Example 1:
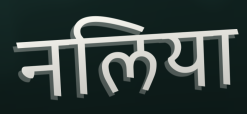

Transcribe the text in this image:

नलिया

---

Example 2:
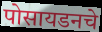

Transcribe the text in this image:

पोसायडनचे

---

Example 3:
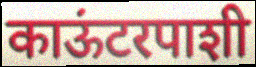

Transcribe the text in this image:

काऊंटरपाशी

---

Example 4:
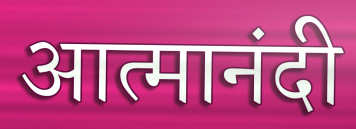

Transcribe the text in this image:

आत्मानंदी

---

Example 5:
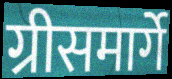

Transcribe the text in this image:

ग्रीसमार्गे